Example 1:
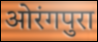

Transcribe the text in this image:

ओरंगपुरा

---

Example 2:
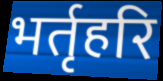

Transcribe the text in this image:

भर्तृहरि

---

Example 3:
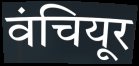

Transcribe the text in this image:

वंचियूर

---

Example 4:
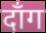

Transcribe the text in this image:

दाँग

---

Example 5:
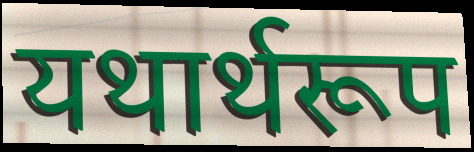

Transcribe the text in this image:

यथार्थरूप